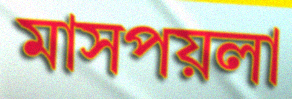
মাসপয়লা